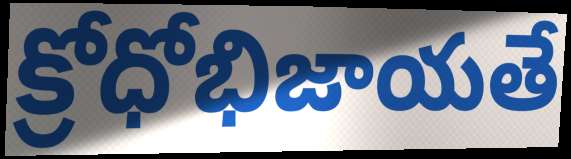
క్రోధోభిజాయతే